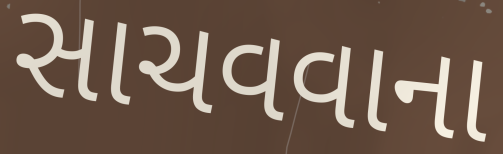
સાચવવાના